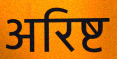
अरिष्ट